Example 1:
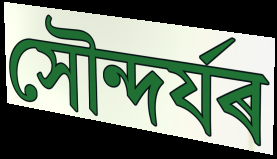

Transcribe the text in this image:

সৌন্দৰ্যৰ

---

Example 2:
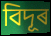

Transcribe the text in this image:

বিদূৰ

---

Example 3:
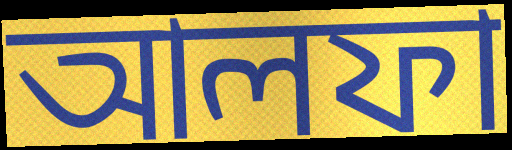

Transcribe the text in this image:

আলফা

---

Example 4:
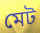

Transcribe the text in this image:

মেট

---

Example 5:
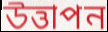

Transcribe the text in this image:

উত্তাপন